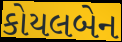
કોયલબેન